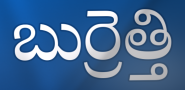
బుర్రెత్తి